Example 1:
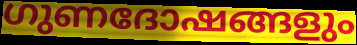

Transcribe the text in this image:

ഗുണദോഷങ്ങളും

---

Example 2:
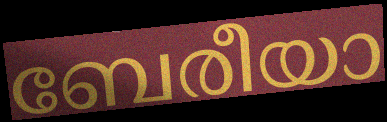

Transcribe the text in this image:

ബേരീയാ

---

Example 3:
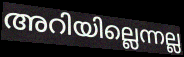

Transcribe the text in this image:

അറിയില്ലെന്നല്ല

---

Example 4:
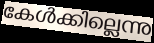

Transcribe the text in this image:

കേൾക്കില്ലെന്നു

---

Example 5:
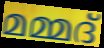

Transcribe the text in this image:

മമ്മദ്